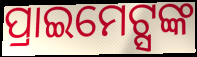
ପ୍ରାଇମେଟ୍ସଙ୍କ